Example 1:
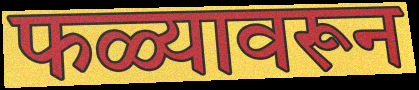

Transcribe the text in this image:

फळ्यावरून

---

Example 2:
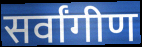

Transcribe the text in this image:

सर्वांगीण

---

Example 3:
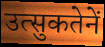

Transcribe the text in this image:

उत्सुकतेनें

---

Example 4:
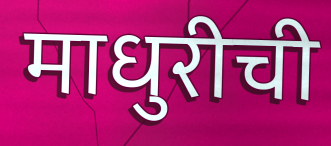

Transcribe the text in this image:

माधुरीची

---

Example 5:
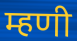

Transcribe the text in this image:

म्हणी